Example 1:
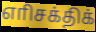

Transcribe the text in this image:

எரிசக்திக்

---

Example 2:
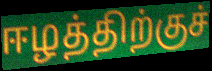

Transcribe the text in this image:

ஈழத்திற்குச்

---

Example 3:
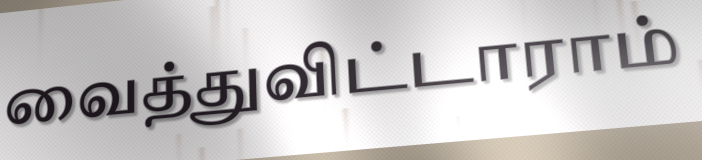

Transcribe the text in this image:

வைத்துவிட்டாராம்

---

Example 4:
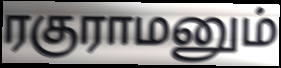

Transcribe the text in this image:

ரகுராமனும்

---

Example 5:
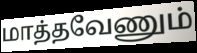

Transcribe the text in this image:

மாத்தவேணும்